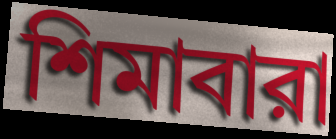
শিমাবারা